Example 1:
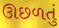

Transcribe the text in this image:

ઊછળતું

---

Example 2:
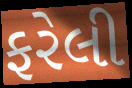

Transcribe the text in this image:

ફરેલી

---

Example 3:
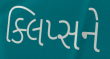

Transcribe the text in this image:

ક્લિપ્સને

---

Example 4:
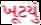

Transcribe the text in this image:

ખૂટયું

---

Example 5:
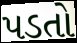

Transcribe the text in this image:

પડતો